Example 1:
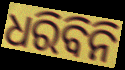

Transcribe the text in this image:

ଧରିବିନି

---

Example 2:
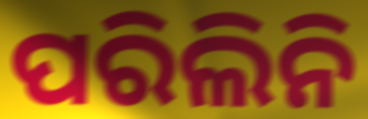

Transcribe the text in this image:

ପରିଲିନି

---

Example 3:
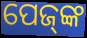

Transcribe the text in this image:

ପେଜ୍‌ଙ୍କ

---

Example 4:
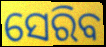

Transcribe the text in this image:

ସେରିବ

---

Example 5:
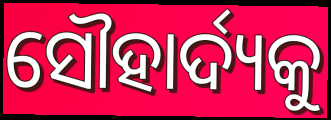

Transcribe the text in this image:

ସୌହାର୍ଦ୍ୟକୁ